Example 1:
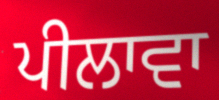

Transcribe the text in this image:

ਪੀਲਾਵਾ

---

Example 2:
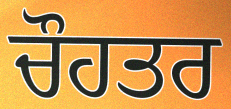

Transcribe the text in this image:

ਚੌਹਤਰ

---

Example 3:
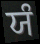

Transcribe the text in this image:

ਯੰ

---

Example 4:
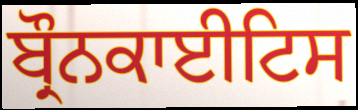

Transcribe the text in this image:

ਬ੍ਰੌਨਕਾਈਟਿਸ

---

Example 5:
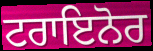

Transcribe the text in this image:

ਟਰਾਇਨੋਰ